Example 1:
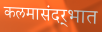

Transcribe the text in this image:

कलमासंदर्भात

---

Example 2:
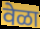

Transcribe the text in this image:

वेळा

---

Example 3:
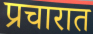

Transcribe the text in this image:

प्रचारात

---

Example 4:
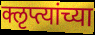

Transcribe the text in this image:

क्लृप्त्यांच्या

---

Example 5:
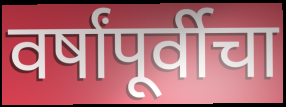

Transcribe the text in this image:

वर्षांपूर्वीचा